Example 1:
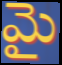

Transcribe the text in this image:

మై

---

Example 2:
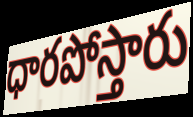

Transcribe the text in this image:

ధారపోస్తారు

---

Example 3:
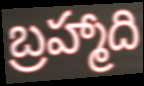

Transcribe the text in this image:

బ్రహ్మాది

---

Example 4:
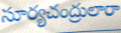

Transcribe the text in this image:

సూర్యచంద్రులారా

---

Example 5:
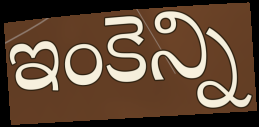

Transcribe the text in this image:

ఇంకెన్ని